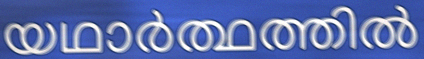
യഥാർത്ഥത്തിൽ